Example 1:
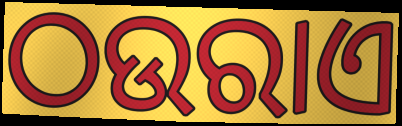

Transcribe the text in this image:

ଠଉରାଏ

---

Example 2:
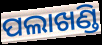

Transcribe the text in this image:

ପଲାଖଣ୍ଡି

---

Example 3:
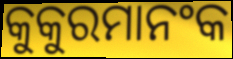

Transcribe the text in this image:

କୁକୁରମାନଂକ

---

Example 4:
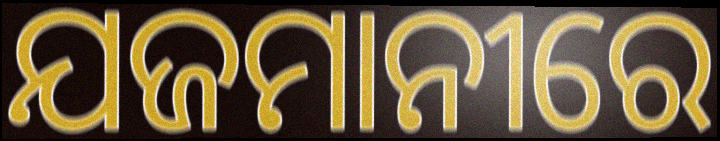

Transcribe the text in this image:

ଯଜମାନୀରେ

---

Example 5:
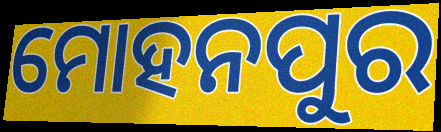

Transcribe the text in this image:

ମୋହନପୁର